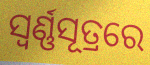
ସ୍ୱର୍ଣ୍ଣସୂତ୍ରରେ